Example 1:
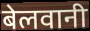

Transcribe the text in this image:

बेलवानी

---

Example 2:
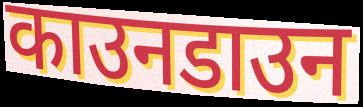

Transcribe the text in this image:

काउनडाउन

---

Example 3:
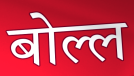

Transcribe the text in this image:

बोल्ल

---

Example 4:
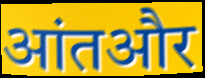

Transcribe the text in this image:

आंतऔर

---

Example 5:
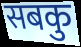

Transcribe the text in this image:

सबकु